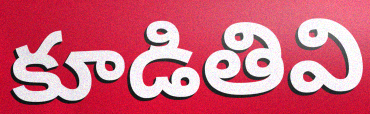
కూడితివి